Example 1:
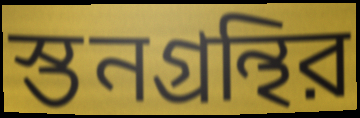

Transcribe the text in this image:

স্তনগ্রন্থির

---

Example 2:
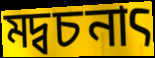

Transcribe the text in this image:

মদ্বচনাৎ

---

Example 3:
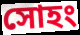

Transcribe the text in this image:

সোহং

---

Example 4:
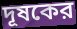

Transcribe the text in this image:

দূষকের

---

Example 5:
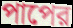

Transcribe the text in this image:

পাপের